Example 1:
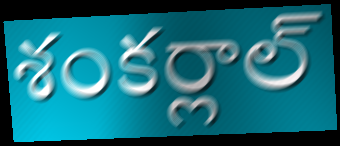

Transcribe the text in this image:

శంకర్లాల్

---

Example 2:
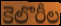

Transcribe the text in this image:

కెలొరీల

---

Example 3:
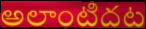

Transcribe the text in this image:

అలాంటిదట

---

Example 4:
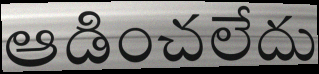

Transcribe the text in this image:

ఆడించలేదు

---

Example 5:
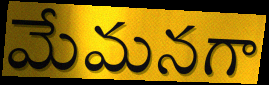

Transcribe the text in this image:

మేమనగా